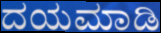
ದಯಮಾಡಿ